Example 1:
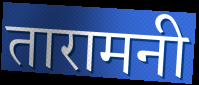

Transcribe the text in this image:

तारामनी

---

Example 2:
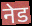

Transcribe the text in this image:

नेड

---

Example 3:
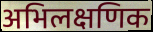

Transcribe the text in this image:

अभिलक्षणिक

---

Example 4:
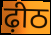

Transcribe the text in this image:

ढ़ीठ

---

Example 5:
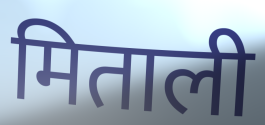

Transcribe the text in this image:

मिताली